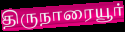
திருநாரையூர்